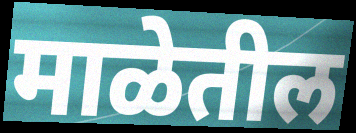
माळेतील